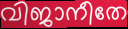
വിജാനീതേ